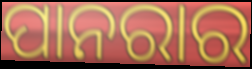
ପାନରାର